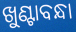
ଖୁଣ୍ଟାବନ୍ଧା